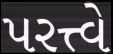
પરત્ત્વે